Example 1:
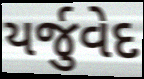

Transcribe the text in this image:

યર્જુવેદ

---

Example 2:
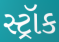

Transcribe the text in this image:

સ્ટ્રૉક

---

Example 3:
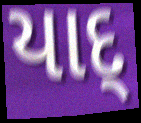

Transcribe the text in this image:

યાદ્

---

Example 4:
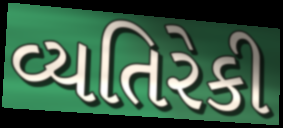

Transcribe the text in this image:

વ્યતિરેકી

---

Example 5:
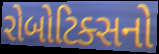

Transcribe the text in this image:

રોબોટિક્સનો